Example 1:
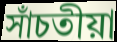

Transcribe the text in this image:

সাঁচতীয়া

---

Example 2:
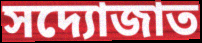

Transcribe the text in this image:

সদ্যোজাত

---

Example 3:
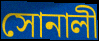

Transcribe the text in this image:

সোনালী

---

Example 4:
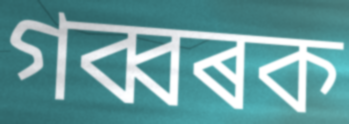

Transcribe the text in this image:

গব্বৰক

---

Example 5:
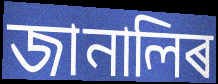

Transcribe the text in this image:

জানালিৰ